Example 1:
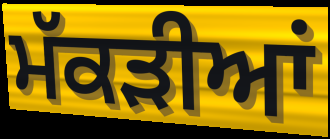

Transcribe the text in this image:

ਮੱਕੜੀਆਂ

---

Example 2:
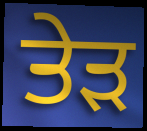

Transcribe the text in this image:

ਤੇੜ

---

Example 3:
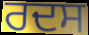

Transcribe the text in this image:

ਰਦਸ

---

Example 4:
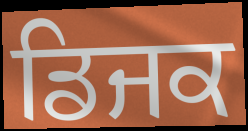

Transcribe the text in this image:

ਡਿਜਕ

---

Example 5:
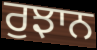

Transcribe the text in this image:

ਰੁਝਾਨ